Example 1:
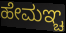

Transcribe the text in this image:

ಹೇಮಞ್ಚ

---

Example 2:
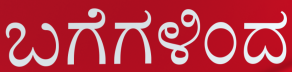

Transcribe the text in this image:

ಬಗೆಗಳಿಂದ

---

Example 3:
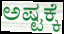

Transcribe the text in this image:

ಅಷ್ಟಕ್ಕೆ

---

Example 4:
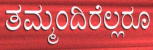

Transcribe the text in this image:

ತಮ್ಮಂದಿರೆಲ್ಲರೂ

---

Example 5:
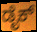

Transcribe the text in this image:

ಡೈಕ್